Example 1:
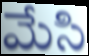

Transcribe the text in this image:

మేసి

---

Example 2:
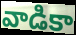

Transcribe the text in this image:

వాడికా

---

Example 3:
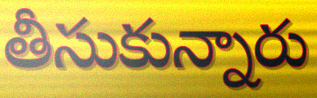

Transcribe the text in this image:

తీసుకున్నారు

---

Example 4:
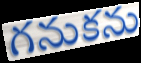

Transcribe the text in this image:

గనుకను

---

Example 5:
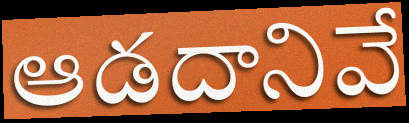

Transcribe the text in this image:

ఆడదానివే